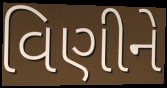
વિણીને